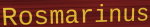
Rosmarinus